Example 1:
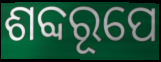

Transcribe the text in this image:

ଶବ୍ଦରୂପେ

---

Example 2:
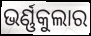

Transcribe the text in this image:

ଭର୍ଣ୍ଣକୁଲାର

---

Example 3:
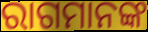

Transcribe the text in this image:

ରାଗମାନଙ୍କ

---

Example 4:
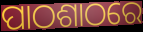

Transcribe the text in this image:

ପାଠଶାଠରେ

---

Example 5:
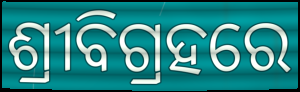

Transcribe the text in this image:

ଶ୍ରୀବିଗ୍ରହରେ